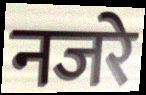
नजरे